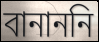
বানাননি